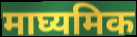
माघ्यमिक